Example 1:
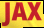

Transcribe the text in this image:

JAX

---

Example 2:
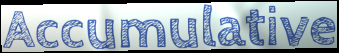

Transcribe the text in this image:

Accumulative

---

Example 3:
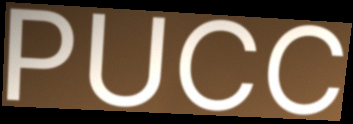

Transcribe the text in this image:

PUCC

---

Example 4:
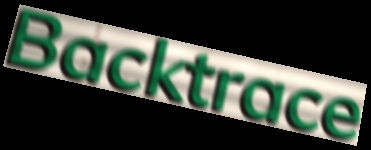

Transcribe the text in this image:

Backtrace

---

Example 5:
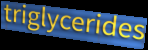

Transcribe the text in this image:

triglycerides